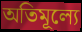
অতিমূল্যে